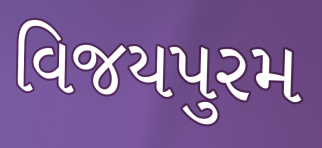
વિજયપુરમ